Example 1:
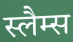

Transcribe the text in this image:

स्लैम्स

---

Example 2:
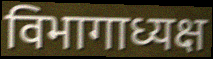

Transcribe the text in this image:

विभागाध्यक्ष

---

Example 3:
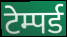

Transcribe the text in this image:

टेम्पर्ड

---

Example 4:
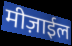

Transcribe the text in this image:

मीज़ाईल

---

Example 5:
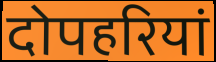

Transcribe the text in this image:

दोपहरियां